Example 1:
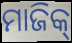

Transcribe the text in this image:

ମାଜିକ୍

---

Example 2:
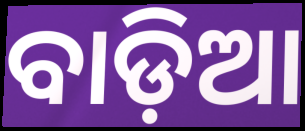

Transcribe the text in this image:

ବାଡ଼ିଆ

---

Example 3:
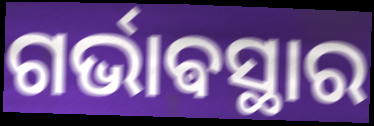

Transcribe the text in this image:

ଗର୍ଭାଵସ୍ଥାର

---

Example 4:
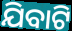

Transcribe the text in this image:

ଯିବାଟି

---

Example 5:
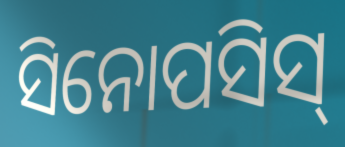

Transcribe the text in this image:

ସିନୋପସିସ୍